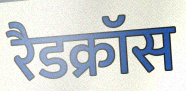
रैडक्रॉस